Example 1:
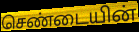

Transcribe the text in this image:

செண்டையின்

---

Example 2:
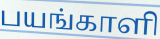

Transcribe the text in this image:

பயங்காளி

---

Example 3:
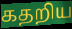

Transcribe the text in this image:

கதறிய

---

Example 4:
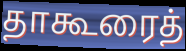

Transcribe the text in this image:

தாகூரைத்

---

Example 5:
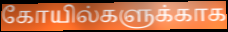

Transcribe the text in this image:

கோயில்களுக்காக